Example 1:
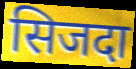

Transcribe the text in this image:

सिजदा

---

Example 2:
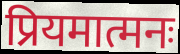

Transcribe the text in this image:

प्रियमात्मनः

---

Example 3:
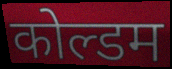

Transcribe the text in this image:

कोल्डम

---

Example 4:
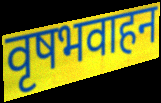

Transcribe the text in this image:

वृषभवाहन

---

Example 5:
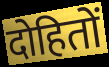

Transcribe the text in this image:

दोहितों